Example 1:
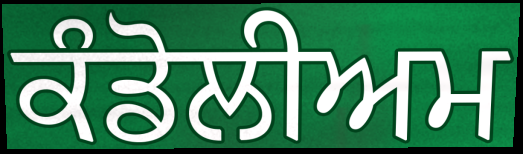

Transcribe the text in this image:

ਕੰਡੋਲੀਅਮ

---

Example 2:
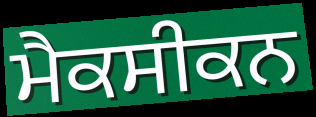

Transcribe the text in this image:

ਮੈਕਸੀਕਨ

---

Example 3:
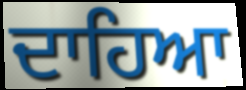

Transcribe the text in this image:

ਦਾਹਿਆ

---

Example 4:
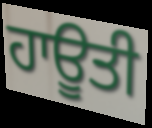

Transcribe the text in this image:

ਹਾਊਤੀ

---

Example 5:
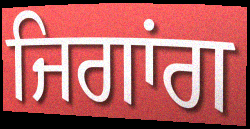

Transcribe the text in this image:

ਜਿਗਾਂਗ